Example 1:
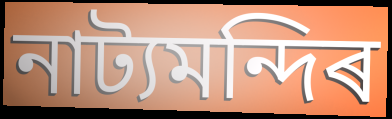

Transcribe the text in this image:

নাট্যমন্দিৰ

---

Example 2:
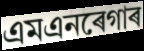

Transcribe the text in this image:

এমএনৰেগাৰ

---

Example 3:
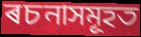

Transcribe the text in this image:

ৰচনাসমূহত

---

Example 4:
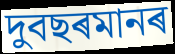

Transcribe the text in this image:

দুবছৰমানৰ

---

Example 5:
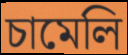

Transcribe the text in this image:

চামেলি